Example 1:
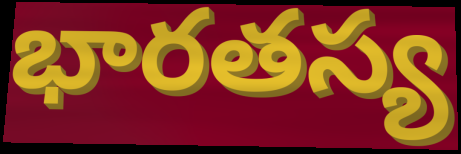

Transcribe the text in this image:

భారతస్య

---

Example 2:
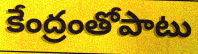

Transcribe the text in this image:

కేంద్రంతోపాటు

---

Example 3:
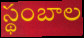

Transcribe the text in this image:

స్థంబాల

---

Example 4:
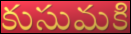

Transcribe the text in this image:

కుసుమకి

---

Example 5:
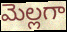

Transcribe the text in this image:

మెల్లగా